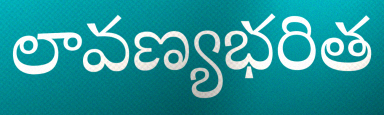
లావణ్యభరిత